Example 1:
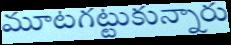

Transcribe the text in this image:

మూటగట్టుకున్నారు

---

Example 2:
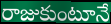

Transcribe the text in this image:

రాజుకుంటూనే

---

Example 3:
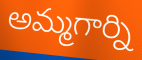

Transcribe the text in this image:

అమ్మగార్ని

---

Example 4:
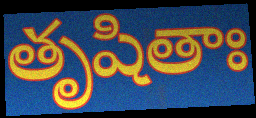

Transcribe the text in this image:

తృషితాః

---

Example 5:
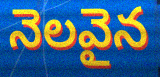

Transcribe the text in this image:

నెలవైన